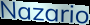
Nazario